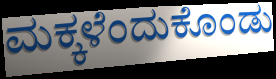
ಮಕ್ಕಳೆಂದುಕೊಂಡು